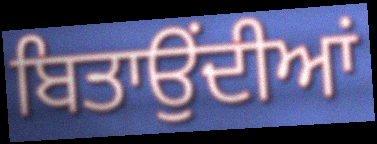
ਬਿਤਾਉਂਦੀਆਂ